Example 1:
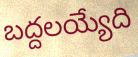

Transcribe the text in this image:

బద్దలయ్యేది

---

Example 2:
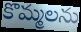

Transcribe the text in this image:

కొమ్మలను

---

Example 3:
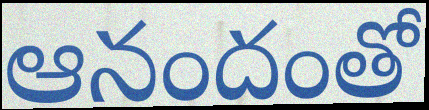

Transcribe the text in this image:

ఆనందంతో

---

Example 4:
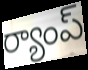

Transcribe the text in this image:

ర్యాంప్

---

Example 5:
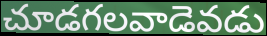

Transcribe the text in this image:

చూడగలవాడెవడు